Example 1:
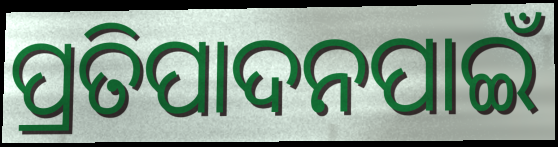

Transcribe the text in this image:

ପ୍ରତିପାଦନପାଇଁ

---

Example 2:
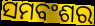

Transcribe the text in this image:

ସମବଂଶର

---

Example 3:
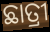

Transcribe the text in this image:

ଛାତ୍ରୀ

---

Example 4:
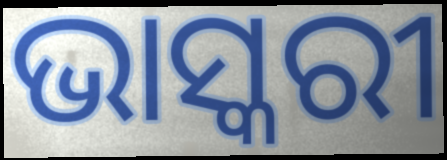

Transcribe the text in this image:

ଭାସ୍କରୀ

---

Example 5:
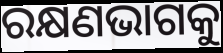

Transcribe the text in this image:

ରକ୍ଷଣଭାଗକୁ